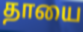
தாயை